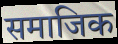
समाजिक